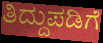
ತಿದ್ದುಪಡಿಗೆ